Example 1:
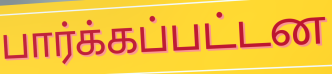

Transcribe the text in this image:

பார்க்கப்பட்டன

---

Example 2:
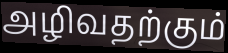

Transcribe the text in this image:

அழிவதற்கும்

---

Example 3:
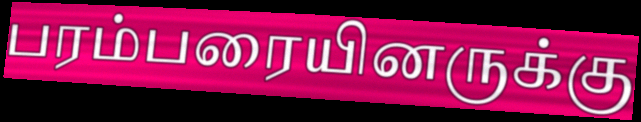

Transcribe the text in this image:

பரம்பரையினருக்கு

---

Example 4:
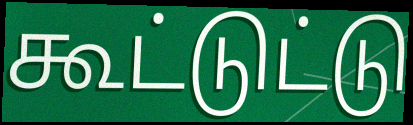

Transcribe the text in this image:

கூட்டுட்டு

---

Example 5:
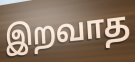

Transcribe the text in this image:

இறவாத